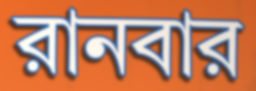
রানবার